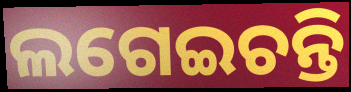
ଲଗେଇଚନ୍ତି